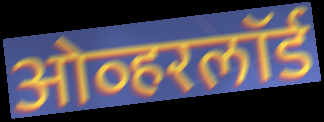
ओव्हरलॉर्ड